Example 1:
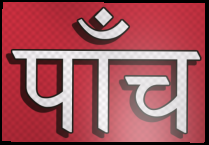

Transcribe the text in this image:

पॉंच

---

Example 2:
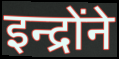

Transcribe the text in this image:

इन्द्रोंने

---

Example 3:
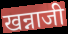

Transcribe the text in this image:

खन्नाजी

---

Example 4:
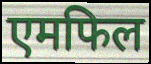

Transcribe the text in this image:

एमफिल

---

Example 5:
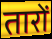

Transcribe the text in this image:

तारों